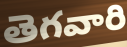
తెగవారి